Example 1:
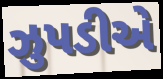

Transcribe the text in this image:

ઝુપડીએ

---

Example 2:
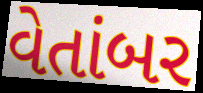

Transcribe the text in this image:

વેતાંબર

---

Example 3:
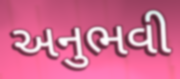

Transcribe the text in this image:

અનુભવી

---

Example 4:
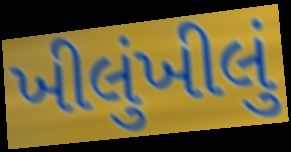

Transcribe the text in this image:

ખીલુંખીલું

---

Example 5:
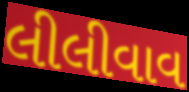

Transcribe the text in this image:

લીલીવાવ